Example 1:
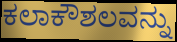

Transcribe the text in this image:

ಕಲಾಕೌಶಲವನ್ನು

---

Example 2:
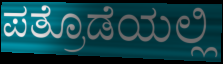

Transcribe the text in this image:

ಪತ್ರೊಡೆಯಲ್ಲಿ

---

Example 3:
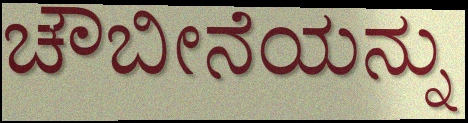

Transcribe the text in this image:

ಚೌಬೀನೆಯನ್ನು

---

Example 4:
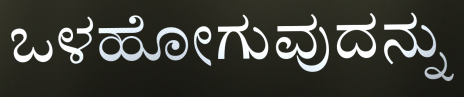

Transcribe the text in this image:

ಒಳಹೋಗುವುದನ್ನು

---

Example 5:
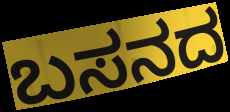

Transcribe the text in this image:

ಬಸನದ